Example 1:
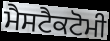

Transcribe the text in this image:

ਮੈਸਟੈਕਟੋਮੀ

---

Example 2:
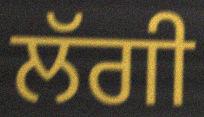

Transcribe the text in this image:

ਲੱਗੀ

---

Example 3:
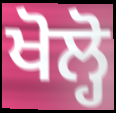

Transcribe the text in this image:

ਖੋਲ੍ਹੋ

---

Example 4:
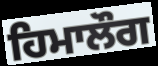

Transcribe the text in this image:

ਹਿਮਾਲੌਗ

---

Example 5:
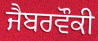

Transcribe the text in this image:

ਜੈਬਰਵੌਕੀ